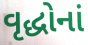
વૃદ્ધોનાં